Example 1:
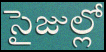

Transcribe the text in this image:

సైజుల్లో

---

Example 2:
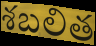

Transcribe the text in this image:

శబలిత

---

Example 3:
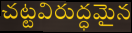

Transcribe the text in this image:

చట్టవిరుద్ధమైన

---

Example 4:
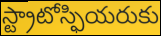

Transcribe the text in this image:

స్ట్రాటోస్ఫియరుకు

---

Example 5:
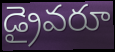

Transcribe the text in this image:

డ్రైవరూ